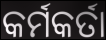
କର୍ମକର୍ତା